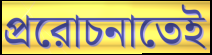
প্ররোচনাতেই